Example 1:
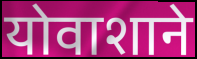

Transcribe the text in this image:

योवाशाने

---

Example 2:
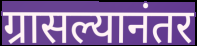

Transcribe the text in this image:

ग्रासल्यानंतर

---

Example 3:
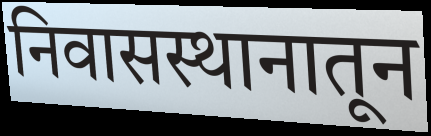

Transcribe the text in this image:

निवासस्थानातून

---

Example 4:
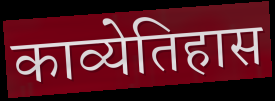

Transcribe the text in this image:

काव्येतिहास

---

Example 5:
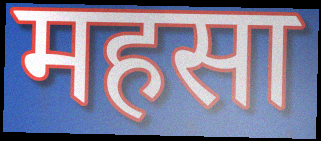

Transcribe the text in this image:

महसा